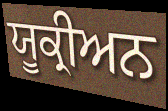
ਯੂਕ੍ਰੀਅਨ